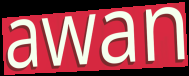
awan